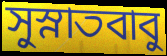
সুস্নাতবাবু